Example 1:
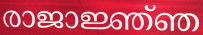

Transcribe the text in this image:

രാജാജ്ഞ്ഞ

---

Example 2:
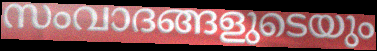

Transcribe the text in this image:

സംവാദങ്ങളുടെയും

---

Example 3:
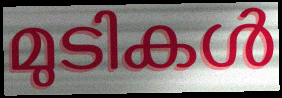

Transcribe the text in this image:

മുടികൾ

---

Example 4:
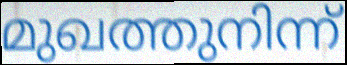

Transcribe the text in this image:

മുഖത്തുനിന്ന്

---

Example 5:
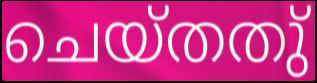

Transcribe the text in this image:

ചെയ്തതു്